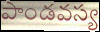
పాండవస్య